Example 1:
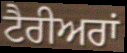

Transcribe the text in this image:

ਟੈਰੀਅਰਾਂ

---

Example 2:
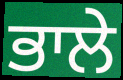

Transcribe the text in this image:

ਭਾਲੇ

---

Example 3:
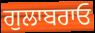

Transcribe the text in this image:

ਗੁਲਾਬਰਾਓ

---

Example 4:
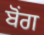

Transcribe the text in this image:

ਬੋਂਗ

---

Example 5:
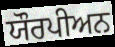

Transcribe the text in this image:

ਯੌਰਪੀਅਨ